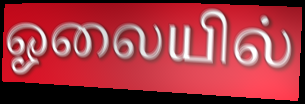
ஓலையில்